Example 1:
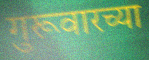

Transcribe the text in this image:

गुरूवारच्या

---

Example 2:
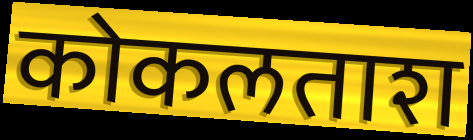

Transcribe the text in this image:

कोकलताश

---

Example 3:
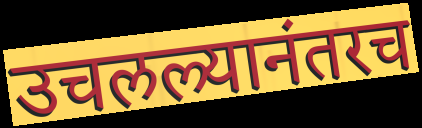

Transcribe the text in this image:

उचलल्यानंतरच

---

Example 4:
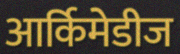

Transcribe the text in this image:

आर्किमेडीज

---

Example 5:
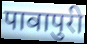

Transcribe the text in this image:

पावापुरी